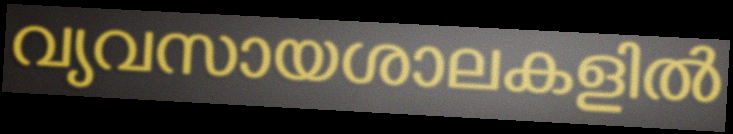
വ്യവസായശാലകളിൽ